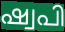
ഷ്വപി